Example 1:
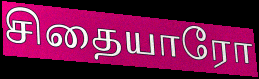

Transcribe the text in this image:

சிதையாரோ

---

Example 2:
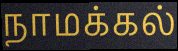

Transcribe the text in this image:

நாமக்கல்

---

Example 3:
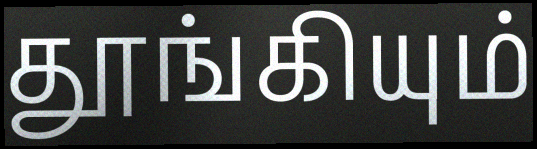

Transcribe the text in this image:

தூங்கியும்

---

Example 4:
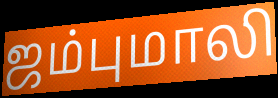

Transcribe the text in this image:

ஜம்புமாலி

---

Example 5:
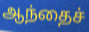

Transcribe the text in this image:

ஆந்தைச்